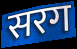
सरग